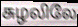
சுழலிலே